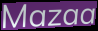
Mazaa